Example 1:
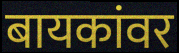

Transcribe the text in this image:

बायकांवर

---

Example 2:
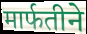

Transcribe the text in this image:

मार्फतीने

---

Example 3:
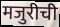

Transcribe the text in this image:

मजुरीची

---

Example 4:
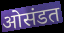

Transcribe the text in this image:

ओसंडत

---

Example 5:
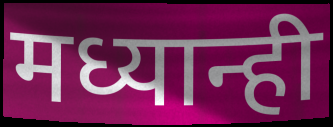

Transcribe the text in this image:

मध्यान्ही